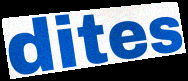
dites